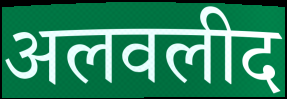
अलवलीद